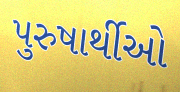
પુરુષાર્થીઓ